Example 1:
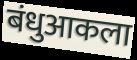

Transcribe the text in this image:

बंधुआकला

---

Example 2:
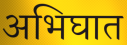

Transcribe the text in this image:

अभिघात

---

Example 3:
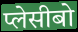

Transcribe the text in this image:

प्लेसीबो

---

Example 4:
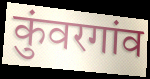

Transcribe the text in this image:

कुंवरगांव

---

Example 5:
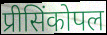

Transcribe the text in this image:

प्रीसिंकोपल